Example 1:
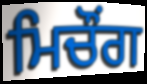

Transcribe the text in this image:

ਮਿਚੌਂਗ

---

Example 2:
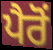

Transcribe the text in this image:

ਪੈਰੋਂ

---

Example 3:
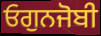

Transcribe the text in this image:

ਓਗੁਨਜੋਬੀ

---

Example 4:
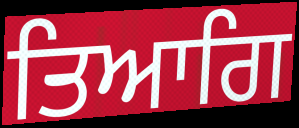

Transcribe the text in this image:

ਤਿਆਗਿ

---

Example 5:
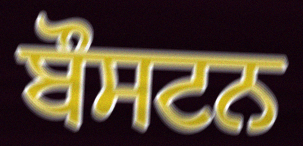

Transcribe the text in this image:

ਬੌਸਟਨ